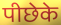
पीछेके